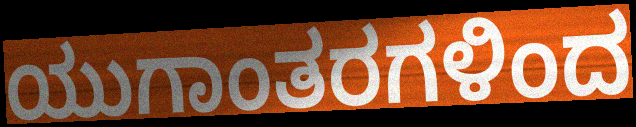
ಯುಗಾಂತರಗಳಿಂದ